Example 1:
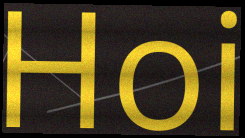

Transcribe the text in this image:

Hoi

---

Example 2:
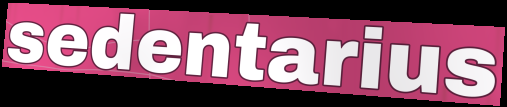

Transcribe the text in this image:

sedentarius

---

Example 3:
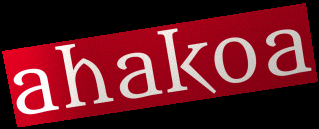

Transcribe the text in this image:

ahakoa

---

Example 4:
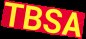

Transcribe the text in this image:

TBSA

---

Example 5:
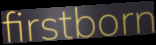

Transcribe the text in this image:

firstborn